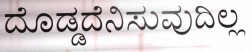
ದೊಡ್ಡದೆನಿಸುವುದಿಲ್ಲ